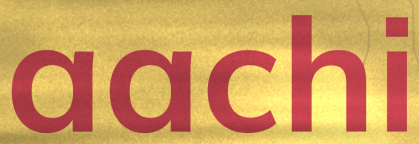
aachi